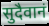
सुदैवानं